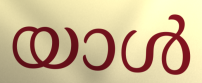
യാൾ